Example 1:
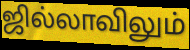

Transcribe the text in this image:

ஜில்லாவிலும்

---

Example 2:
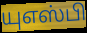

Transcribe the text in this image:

யுஎஸ்பி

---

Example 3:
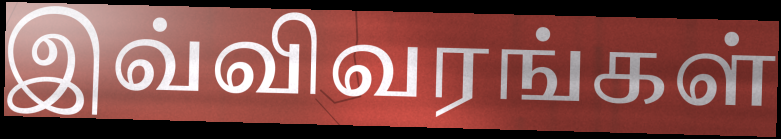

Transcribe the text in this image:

இவ்விவரங்கள்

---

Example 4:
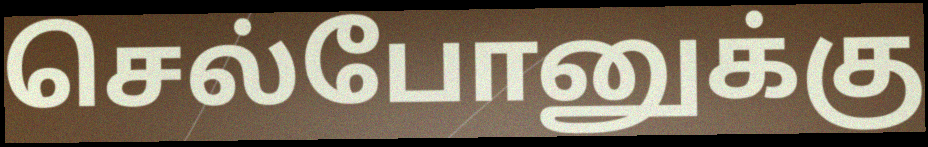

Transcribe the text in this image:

செல்போனுக்கு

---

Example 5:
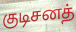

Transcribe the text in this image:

குடிசனத்